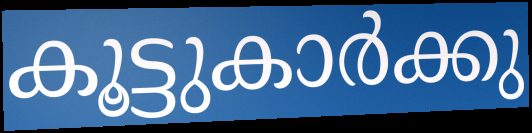
കൂട്ടുകാർക്കു